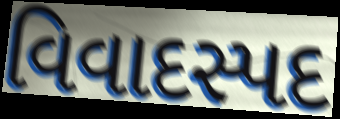
વિવાદસ્પદ